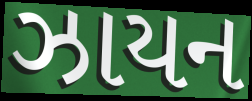
ઝાયન